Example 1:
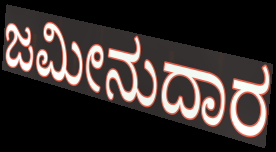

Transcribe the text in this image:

ಜಮೀನುದಾರ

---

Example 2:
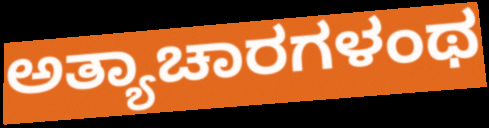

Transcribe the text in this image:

ಅತ್ಯಾಚಾರಗಳಂಥ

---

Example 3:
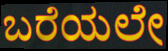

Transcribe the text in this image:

ಬರೆಯಲೇ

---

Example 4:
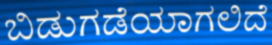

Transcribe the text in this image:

ಬಿಡುಗಡೆಯಾಗಲಿದೆ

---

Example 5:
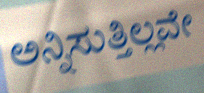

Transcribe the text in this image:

ಅನ್ನಿಸುತ್ತಿಲ್ಲವೇ